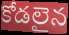
కోడలైన